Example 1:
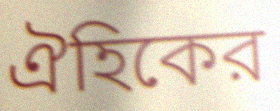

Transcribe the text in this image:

ঐহিকের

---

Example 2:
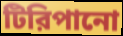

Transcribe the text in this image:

টিরিপানো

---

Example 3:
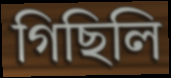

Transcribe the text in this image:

গিছিলি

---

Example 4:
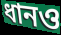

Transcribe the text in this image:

ধানও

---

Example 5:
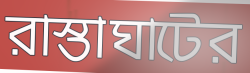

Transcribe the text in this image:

রাস্তাঘাটের